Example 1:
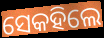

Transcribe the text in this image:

ସେକହିଲେ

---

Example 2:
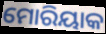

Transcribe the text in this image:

ମୋରିୟାକ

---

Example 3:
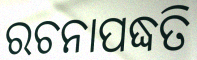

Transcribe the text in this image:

ରଚନାପଦ୍ଧତି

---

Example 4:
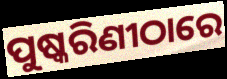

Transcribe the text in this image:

ପୁଷ୍କରିଣୀଠାରେ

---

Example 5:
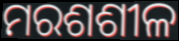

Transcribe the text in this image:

ମରଶଶୀଳ